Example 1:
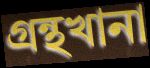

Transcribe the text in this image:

গ্রন্থখানা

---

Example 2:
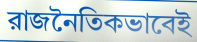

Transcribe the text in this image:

রাজনৈতিকভাবেই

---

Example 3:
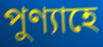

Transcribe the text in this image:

পুণ্যাহে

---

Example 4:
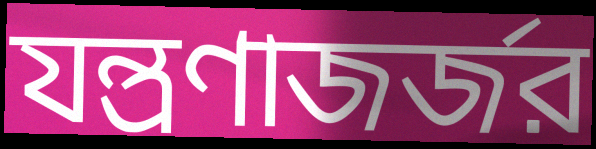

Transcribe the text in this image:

যন্ত্রণাজর্জর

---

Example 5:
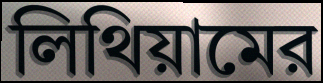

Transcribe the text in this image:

লিথিয়ামের